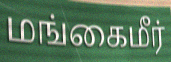
மங்கைமீர்